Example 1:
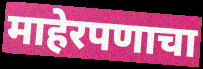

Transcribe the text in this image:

माहेरपणाचा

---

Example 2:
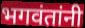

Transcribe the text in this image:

भगवंतांनी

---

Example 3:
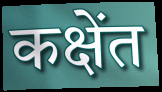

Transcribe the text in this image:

कक्षेंत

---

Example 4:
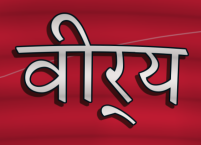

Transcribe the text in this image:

वीर्य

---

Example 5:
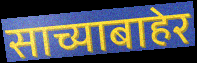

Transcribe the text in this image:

साच्याबाहेर